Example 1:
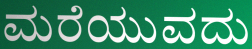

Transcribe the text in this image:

ಮರೆಯುವದು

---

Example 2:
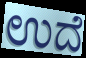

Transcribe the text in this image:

ಉದೆ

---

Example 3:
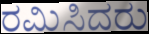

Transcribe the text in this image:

ರಮಿಸಿದರು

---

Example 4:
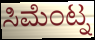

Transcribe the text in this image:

ಸಿಮೆಂಟ್ನ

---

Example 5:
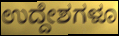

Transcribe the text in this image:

ಉದ್ದೇಶಗಳೂ